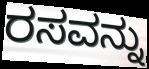
ರಸವನ್ನು